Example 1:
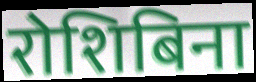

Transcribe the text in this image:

रोशिबिना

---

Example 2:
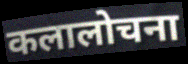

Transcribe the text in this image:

कलालोचना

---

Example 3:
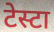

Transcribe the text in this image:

टेस्टा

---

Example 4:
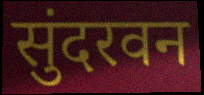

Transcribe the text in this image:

सुंदरवन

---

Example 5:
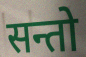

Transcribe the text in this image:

सन्तो